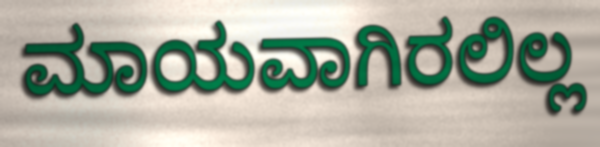
ಮಾಯವಾಗಿರಲಿಲ್ಲ